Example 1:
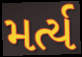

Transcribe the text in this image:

મર્ત્ય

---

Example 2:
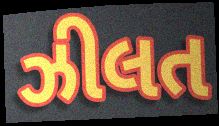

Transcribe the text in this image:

ઝીલત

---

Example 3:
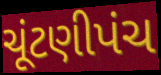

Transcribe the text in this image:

ચૂંટણીપંચ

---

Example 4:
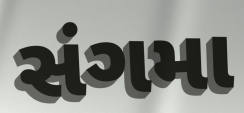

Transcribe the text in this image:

સંગમા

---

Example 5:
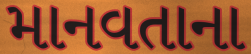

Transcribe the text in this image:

માનવતાના